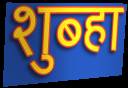
शुब्हा